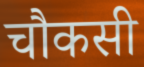
चौकसी